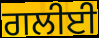
ਗਲੀਈ